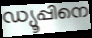
ഡ്യൂപ്പിനെ